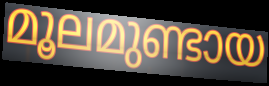
മൂലമുണ്ടായ